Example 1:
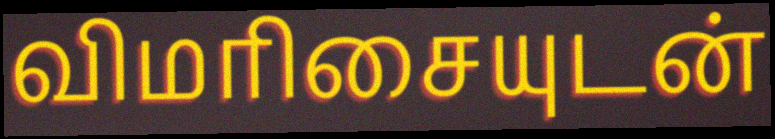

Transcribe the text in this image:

விமரிசையுடன்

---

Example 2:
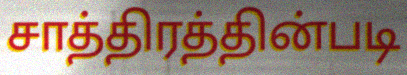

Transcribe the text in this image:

சாத்திரத்தின்படி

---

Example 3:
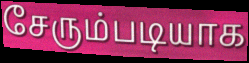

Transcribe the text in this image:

சேரும்படியாக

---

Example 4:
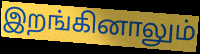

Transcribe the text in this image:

இறங்கினாலும்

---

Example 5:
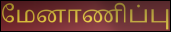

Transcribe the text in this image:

மேனாணிப்பு